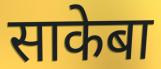
साकेबा